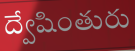
ద్వేషింతురు